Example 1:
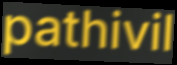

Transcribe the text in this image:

pathivil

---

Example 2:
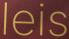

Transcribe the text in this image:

leis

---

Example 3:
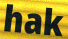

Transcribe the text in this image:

hak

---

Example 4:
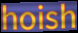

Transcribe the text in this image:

hoish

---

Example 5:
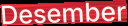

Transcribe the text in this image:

Desember